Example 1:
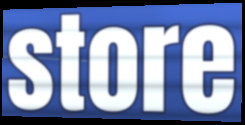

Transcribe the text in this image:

store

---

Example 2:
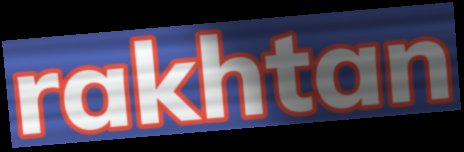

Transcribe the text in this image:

rakhtan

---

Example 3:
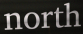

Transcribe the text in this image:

north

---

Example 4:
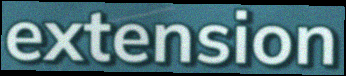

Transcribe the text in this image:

extension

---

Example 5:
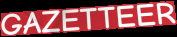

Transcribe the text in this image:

GAZETTEER